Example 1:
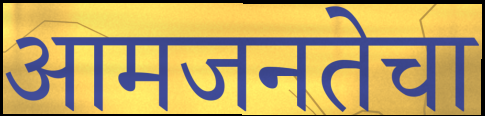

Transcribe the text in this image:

आमजनतेचा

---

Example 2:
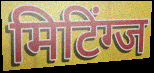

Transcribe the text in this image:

मिटिंग्ज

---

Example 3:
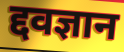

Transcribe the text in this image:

द्दवज्ञान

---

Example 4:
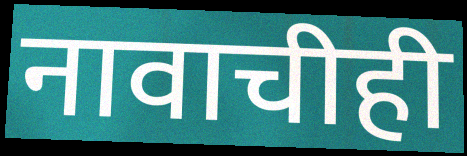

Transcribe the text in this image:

नावाचीही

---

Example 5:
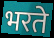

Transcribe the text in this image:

भरते